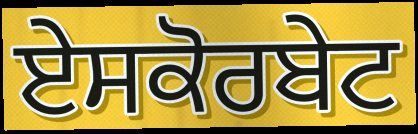
ਏਸਕੋਰਬੇਟ